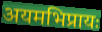
अयमभिप्रायः